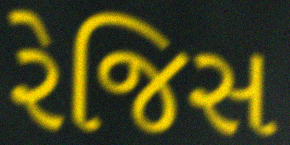
રેજિસ